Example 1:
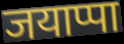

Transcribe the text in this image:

जयाप्पा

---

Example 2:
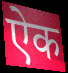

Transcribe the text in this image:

ऐक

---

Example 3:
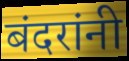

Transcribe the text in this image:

बंदरांनी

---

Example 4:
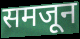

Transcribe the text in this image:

समजून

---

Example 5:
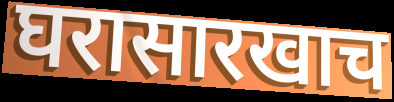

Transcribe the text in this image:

घरासारखाच